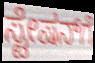
ಸ್ಟೇಷನ್‌ಗೆ